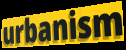
urbanism